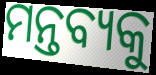
ମନ୍ତବ୍ୟକୁ